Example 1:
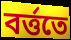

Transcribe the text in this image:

বর্ত্ততে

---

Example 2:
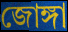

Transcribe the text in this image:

জোঙ্গা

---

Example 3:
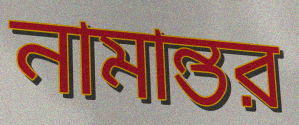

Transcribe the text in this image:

নামান্তর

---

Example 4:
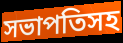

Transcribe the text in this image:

সভাপতিসহ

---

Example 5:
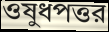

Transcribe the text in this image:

ওষুধপত্তর